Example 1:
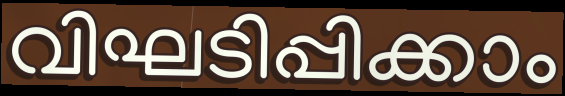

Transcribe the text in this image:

വിഘടിപ്പിക്കാം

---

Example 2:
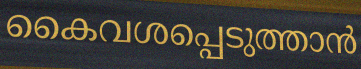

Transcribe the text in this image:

കൈവശപ്പെടുത്താൻ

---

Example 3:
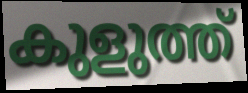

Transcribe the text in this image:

കുളുത്ത്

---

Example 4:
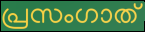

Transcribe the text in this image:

പ്രസംഗാത്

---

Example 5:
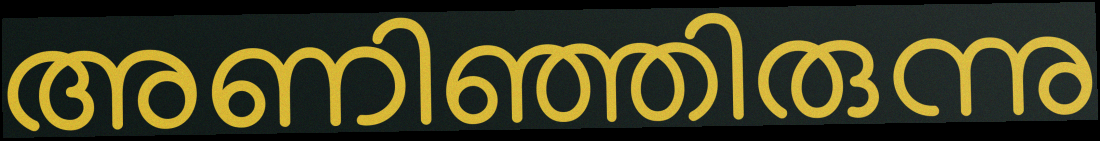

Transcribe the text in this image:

അണിഞ്ഞിരുന്നു